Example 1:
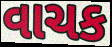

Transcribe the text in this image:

વાચક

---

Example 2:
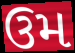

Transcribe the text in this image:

ઉમ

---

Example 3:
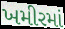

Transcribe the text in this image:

ખમીરમાં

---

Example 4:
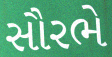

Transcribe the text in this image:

સૌરભે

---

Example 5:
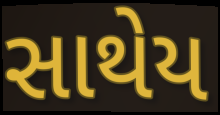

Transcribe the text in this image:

સાથેય